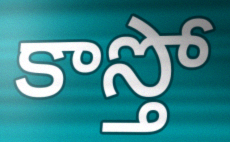
కాస్తో